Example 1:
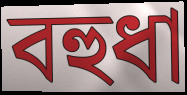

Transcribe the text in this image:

বহুধা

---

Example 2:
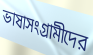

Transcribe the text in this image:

ভাষাসংগ্রামীদের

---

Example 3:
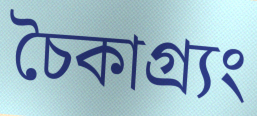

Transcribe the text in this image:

চৈকাগ্র্যং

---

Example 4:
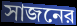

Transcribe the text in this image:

সাজনের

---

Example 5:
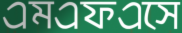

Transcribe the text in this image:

এমএফএসে